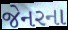
જેનરના